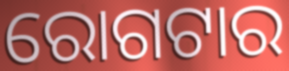
ରୋଗଟାର